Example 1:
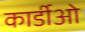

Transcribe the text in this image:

कार्डीओ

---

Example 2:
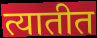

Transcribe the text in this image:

त्यातीत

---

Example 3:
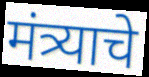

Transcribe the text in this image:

मंत्र्याचे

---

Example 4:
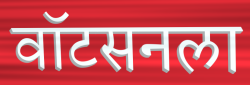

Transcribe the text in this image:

वॉटसनला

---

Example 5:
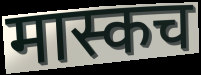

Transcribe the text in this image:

मास्कच